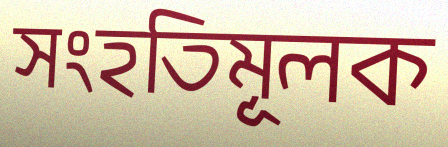
সংহতিমূলক